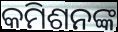
କମିଶନଙ୍କ